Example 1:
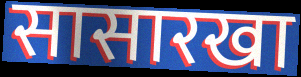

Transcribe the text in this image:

सासारखा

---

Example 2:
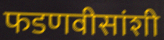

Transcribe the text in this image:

फडणवीसांशी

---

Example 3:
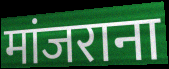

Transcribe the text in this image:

मांजराना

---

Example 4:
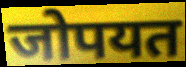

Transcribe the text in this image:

जोपयत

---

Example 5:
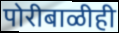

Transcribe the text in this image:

पोरीबाळीही